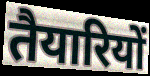
तैयारियों